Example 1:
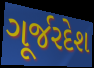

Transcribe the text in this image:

ગૂર્જરદેશ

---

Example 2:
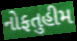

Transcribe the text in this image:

નોફતુહીમ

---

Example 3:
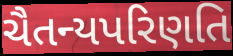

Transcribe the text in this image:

ચૈતન્યપરિણતિ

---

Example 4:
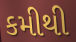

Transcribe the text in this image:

કમીથી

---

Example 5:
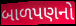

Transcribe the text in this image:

બાળપણનો